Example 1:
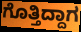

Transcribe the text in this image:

ಗೊತ್ತಿದ್ದಾಗ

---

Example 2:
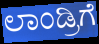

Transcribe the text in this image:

ಲಾಂಡ್ರಿಗೆ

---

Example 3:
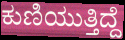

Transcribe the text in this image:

ಕುಣಿಯುತ್ತಿದ್ದೆ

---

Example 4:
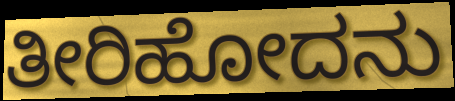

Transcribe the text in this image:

ತೀರಿಹೋದನು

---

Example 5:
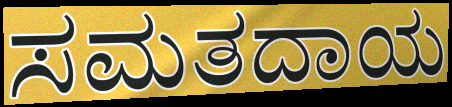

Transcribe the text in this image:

ಸಮತದಾಯ